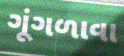
ગૂંગળાવા